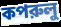
কপরুলু